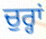
ਚੁਰ੍ਹਾਂ